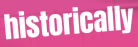
historically